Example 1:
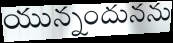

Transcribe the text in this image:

యున్నందునను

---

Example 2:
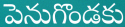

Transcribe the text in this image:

పెనుగొండకు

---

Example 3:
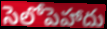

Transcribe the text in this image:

సెలోపెహాదు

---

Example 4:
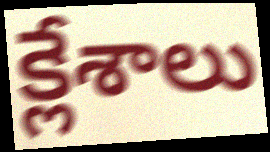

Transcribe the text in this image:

క్లేశాలు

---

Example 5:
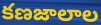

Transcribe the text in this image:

కణజాలాల